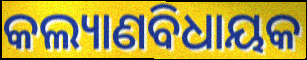
କଲ୍ୟାଣବିଧାୟକ